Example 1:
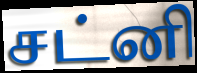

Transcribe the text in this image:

சட்னி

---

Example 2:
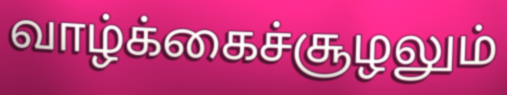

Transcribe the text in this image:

வாழ்க்கைச்சூழலும்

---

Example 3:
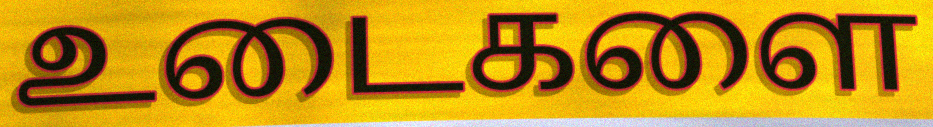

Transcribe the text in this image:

உடைகளை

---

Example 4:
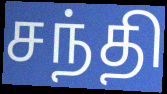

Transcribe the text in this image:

சந்தி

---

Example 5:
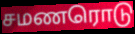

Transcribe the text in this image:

சமணரொடு